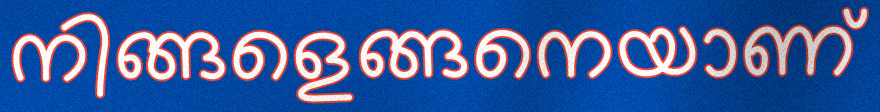
നിങ്ങളെങ്ങനെയാണ്